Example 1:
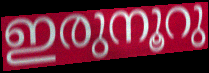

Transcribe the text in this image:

ഇരുനൂറു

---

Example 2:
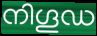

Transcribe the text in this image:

നിഗൂഡ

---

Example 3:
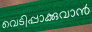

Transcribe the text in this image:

വെടിപ്പാക്കുവാൻ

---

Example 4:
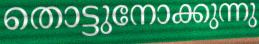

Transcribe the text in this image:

തൊട്ടുനോക്കുന്നു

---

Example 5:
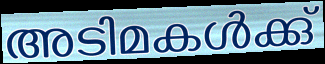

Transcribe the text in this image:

അടിമകൾക്കു്